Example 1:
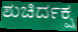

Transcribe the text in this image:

ಶುಚಿರ್ದಕ್ಷ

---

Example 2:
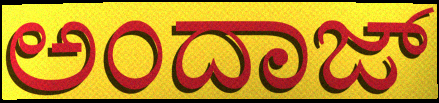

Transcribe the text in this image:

ಅಂದಾಜ್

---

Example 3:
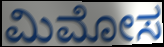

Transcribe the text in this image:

ಮಿಮೋಸ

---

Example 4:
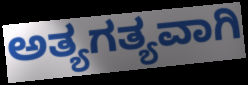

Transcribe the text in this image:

ಅತ್ಯಗತ್ಯವಾಗಿ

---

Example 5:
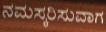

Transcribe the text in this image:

ನಮಸ್ಕರಿಸುವಾಗ